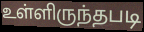
உள்ளிருந்தபடி